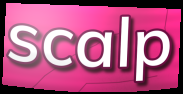
scalp